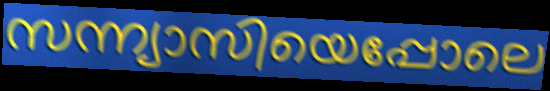
സന്ന്യാസിയെപ്പോലെ